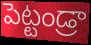
పెట్టండ్రా